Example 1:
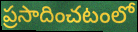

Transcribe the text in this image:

ప్రసాదించటంలో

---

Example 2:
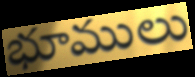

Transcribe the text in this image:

భూములు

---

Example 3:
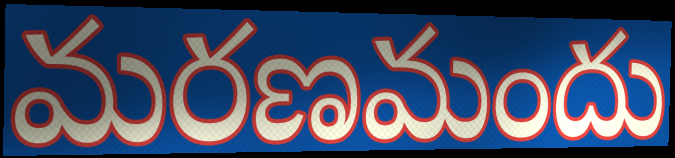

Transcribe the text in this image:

మరణమందు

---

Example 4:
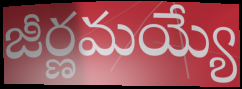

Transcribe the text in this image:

జీర్ణమయ్యే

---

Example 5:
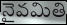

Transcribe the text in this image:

నైవమితి